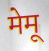
मेमू